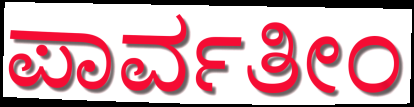
ಪಾರ್ವತೀಂ